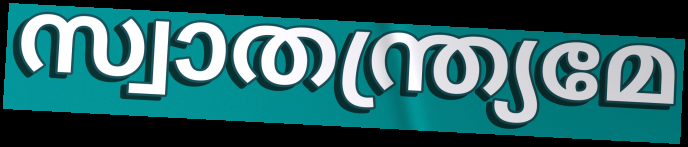
സ്വാതന്ത്ര്യമേ